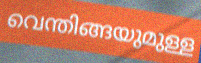
വെന്തിങ്ങയുമുള്ള